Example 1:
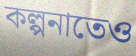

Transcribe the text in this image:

কল্পনাতেও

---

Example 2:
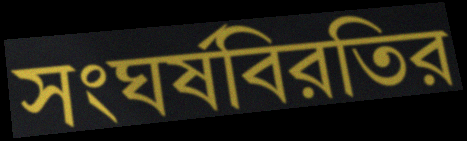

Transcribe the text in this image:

সংঘর্ষবিরতির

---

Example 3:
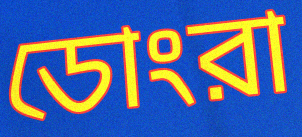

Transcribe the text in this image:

ডোংরা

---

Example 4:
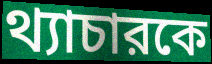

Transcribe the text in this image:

থ্যাচারকে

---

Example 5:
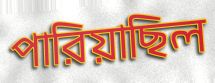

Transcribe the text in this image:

পারিয়াছিল